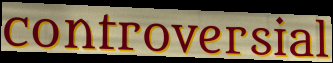
controversial